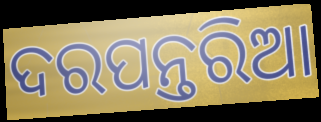
ଦରପନ୍ତରିଆ